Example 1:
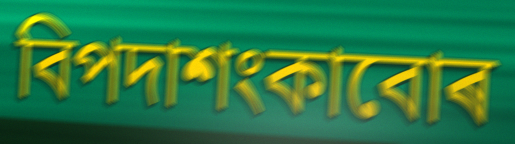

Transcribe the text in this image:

বিপদাশংকাবোৰ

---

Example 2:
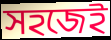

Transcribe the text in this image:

সহজেই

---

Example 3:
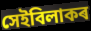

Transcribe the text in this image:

সেইবিলাকৰ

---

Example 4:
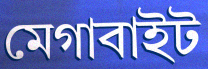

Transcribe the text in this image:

মেগাবাইট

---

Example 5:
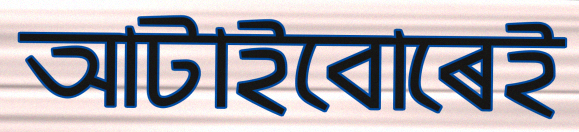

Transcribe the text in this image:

আটাইবোৰেই